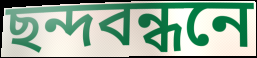
ছন্দবন্ধনে